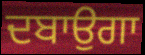
ਦਬਾਉਗਾ